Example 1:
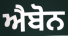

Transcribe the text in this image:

ਐਬੋਨ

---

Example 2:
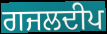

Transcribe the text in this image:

ਗਜਲਦੀਪ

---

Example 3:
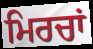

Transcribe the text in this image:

ਮਿਰਚਾਂ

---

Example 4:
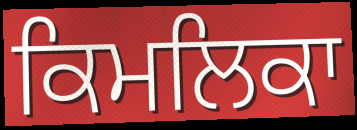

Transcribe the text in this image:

ਕਿਮਲਿਕਾ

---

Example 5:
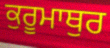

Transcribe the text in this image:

ਕੁਰੂਮਾਥੁਰ